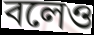
বলেও